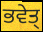
ਭਵੇਤ੍